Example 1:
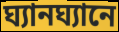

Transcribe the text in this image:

ঘ্যানঘ্যানে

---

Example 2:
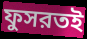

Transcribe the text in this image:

ফুসরতই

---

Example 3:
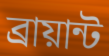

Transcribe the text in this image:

ব্রায়ান্ট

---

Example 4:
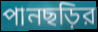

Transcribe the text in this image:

পানছড়ির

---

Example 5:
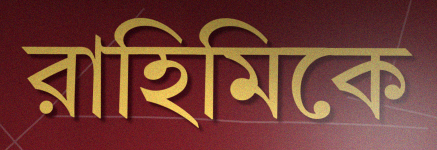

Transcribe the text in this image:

রাহিমিকে